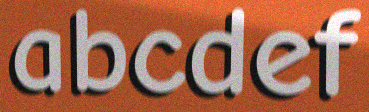
abcdef